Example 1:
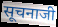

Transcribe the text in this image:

सूचनाजी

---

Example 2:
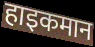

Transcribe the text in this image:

हाइकमान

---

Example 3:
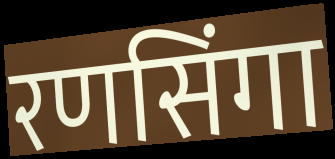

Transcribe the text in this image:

रणसिंगा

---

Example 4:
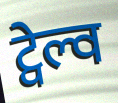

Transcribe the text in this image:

ट्वेल्व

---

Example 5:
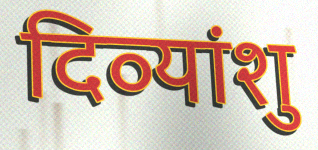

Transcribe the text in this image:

दिव्‍यांशु